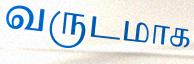
வருடமாக